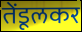
तेंडूलकर